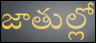
జాతుల్లో